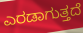
ಎರಡಾಗುತ್ತದೆ